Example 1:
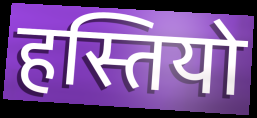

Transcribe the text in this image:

हस्तियो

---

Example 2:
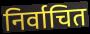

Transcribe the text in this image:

निर्वाचित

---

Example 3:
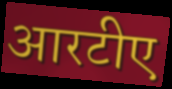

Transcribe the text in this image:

आरटीए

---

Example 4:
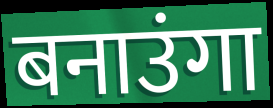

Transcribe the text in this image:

बनाउंगा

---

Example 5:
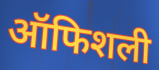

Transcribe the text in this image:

ऑफिशली